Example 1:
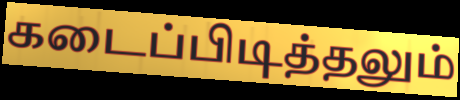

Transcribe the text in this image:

கடைப்பிடித்தலும்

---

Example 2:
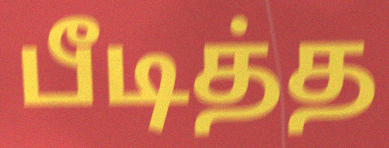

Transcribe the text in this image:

பீடித்த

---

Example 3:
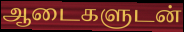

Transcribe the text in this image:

ஆடைகளுடன்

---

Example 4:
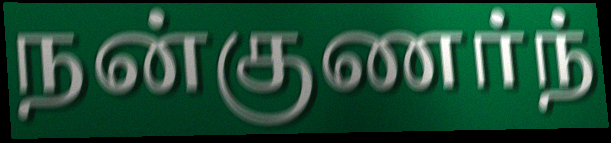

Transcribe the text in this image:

நன்குணர்ந்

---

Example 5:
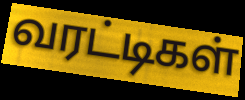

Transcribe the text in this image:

வரட்டிகள்